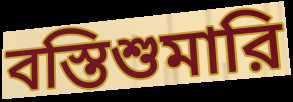
বস্তিশুমারি